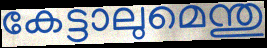
കേട്ടാലുമെന്തു